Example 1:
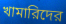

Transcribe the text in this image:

খামারিদের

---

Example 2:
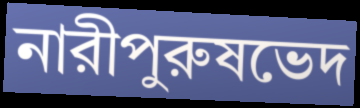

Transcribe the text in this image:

নারীপুরুষভেদ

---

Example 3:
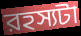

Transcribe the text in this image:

রহস্যটা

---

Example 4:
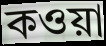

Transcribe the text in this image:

কওয়া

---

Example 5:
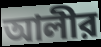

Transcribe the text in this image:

আলীর